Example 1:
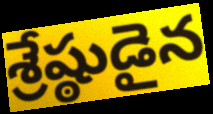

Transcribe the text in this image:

శ్రేష్ఠుడైన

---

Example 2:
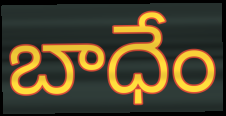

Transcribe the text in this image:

బాధేం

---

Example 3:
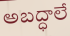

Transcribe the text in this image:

అబద్ధాలే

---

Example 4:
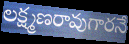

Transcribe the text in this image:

లక్ష్మణరావుగారనే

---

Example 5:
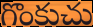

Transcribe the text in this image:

గొంకుచు